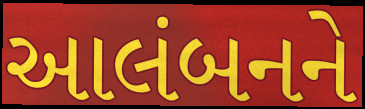
આલંબનને